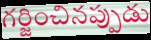
గర్జించినప్పుడు